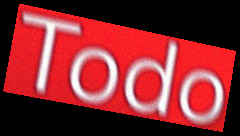
Todo